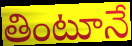
తింటూనే